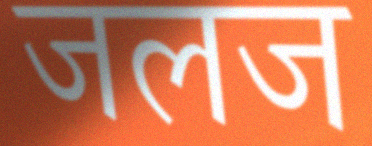
जलज